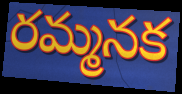
రమ్మనక